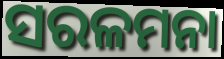
ସରଳମନା